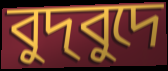
বুদ্‌বুদে